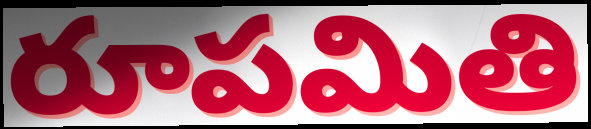
రూపమితి